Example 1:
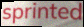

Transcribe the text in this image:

sprinted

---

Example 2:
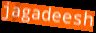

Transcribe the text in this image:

jagadeesh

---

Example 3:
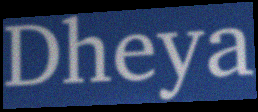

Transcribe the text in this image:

Dheya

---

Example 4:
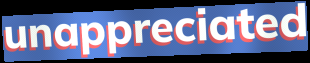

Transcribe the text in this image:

unappreciated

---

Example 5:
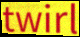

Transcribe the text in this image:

twirl